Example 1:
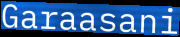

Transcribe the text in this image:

Garaasani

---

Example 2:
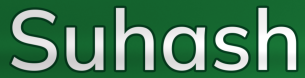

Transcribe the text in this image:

Suhash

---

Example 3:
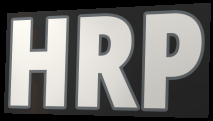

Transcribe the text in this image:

HRP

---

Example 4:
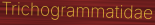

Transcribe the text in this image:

Trichogrammatidae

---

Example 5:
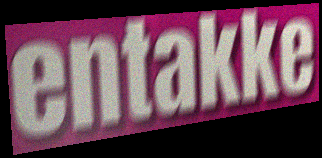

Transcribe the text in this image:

entakke